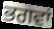
ਭਗਵਾਂ